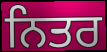
ਨਿਤਰ